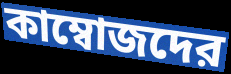
কাম্বোজদের